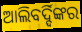
ଆଲିବର୍ଦ୍ଦିଙ୍କର